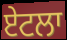
ਏਟਲਾ